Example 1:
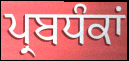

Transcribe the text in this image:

ਪ੍ਰਬਧੰਕਾਂ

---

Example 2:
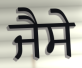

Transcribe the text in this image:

ਜੈਸੇ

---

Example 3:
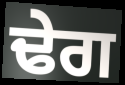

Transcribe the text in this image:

ਢੇਗ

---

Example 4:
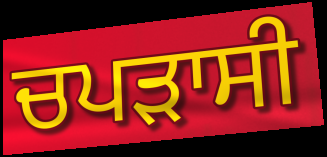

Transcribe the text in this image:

ਚਪੜਾਸੀ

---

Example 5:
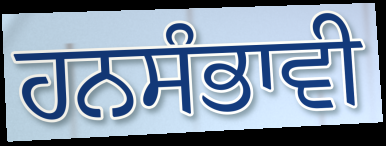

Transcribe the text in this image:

ਹਨਸੰਭਾਵੀ